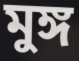
মুঙ্গ